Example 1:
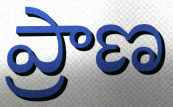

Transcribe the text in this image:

ప్రాణ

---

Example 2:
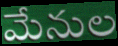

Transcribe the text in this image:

మేనుల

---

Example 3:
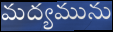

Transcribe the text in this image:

మద్యమును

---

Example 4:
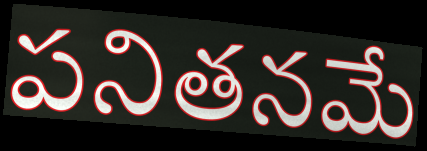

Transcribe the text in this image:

పనితనమే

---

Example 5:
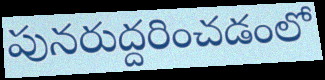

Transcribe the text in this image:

పునరుద్దరించడంలో